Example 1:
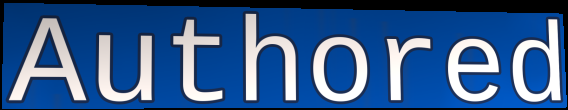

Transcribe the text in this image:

Authored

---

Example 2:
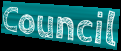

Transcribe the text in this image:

Council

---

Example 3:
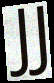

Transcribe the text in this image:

JJ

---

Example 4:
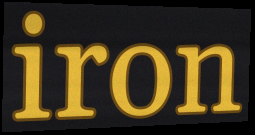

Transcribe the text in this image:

iron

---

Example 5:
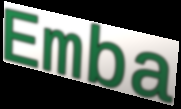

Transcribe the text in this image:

Emba